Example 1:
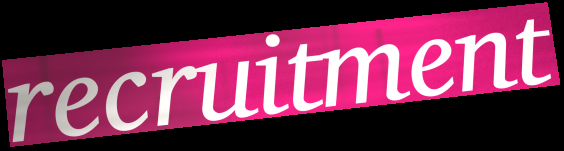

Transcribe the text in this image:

recruitment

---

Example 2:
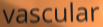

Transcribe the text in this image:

vascular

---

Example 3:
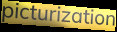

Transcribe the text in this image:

picturization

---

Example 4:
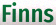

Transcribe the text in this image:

Finns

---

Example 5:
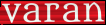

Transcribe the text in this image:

varan